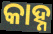
କାହ୍ନ